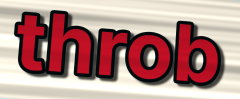
throb